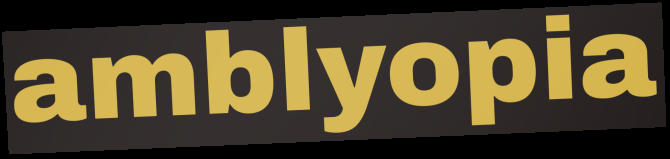
amblyopia